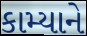
કામ્યાને